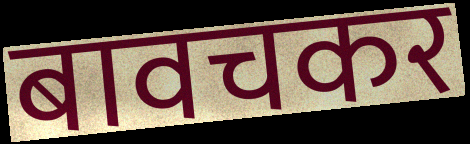
बावचकर